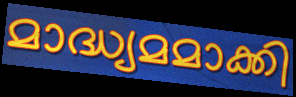
മാദ്ധ്യമമാക്കി